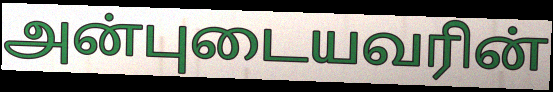
அன்புடையவரின்